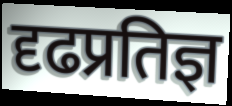
दृढप्रतिज्ञ